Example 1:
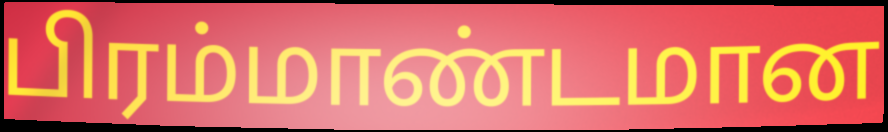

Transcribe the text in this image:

பிரம்மாண்டமான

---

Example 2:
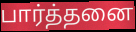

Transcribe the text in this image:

பார்த்தனை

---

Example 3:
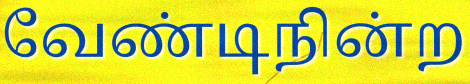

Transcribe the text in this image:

வேண்டிநின்ற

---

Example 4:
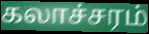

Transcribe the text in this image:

கலாச்சரம்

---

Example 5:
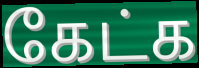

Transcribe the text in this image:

கேட்க